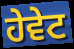
ਹੇਵੇਟ